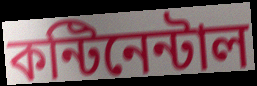
কন্টিনেন্টাল